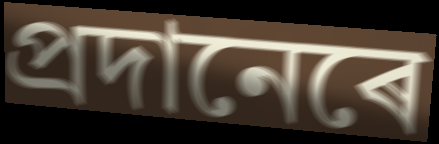
প্ৰদানেৰে